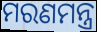
ମରଣମନ୍ତ୍ର